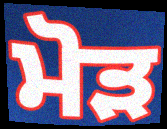
ਮੋੜ